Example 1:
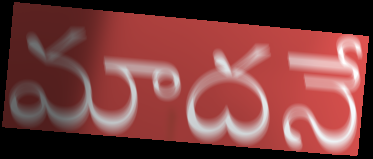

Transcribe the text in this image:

మాదనే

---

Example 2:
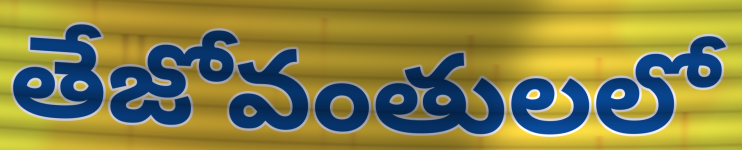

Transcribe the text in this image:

తేజోవంతులలో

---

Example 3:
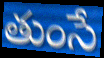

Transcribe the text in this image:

తుంసే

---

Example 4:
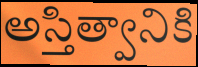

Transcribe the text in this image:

అస్తిత్వానికి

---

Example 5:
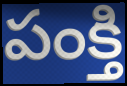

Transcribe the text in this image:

పంక్తి